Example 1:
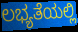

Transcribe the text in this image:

ಲಭ್ಯತೆಯಲ್ಲಿ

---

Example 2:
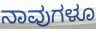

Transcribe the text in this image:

ನಾವುಗಳೂ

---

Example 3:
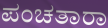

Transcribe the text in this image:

ಪಂಚತಾರಾ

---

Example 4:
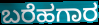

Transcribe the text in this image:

ಬರೆಹಗಾರ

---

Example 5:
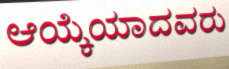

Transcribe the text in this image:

ಆಯ್ಕೆಯಾದವರು